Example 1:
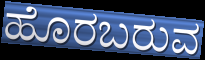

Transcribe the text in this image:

ಹೊರಬರುವ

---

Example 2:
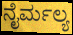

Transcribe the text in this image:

ನೈರ್ಮಲ್ಯ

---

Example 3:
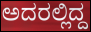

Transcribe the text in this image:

ಅದರಲ್ಲಿದ್ದ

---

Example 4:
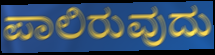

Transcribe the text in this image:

ಪಾಲಿರುವುದು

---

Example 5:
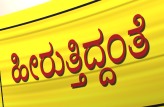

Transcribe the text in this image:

ಹೀರುತ್ತಿದ್ದಂತೆ